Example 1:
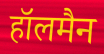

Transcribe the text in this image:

हॉलमैन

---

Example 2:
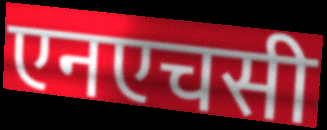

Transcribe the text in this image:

एनएचसी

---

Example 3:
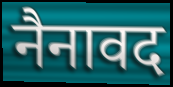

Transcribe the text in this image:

नैनावद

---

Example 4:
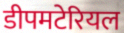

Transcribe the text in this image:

डीपमटेरियल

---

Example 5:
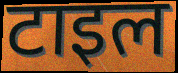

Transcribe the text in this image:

टाइल